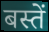
बस्तें